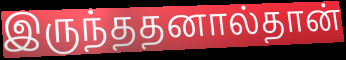
இருந்ததனால்தான்